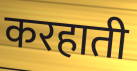
करहाती